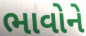
ભાવોને